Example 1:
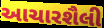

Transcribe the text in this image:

આચારશૈલી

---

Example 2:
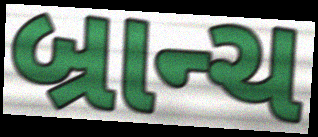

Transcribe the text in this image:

બ્રાન્ચ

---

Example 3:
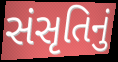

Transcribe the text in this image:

સંસૃતિનું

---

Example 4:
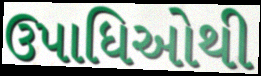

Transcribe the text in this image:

ઉપાધિઓથી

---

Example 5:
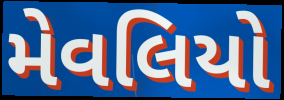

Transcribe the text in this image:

મેવલિયો